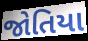
જોતિયા